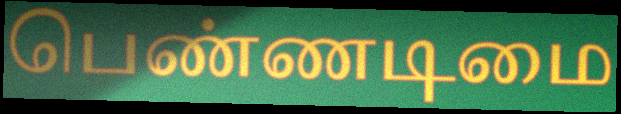
பெண்ணடிமை